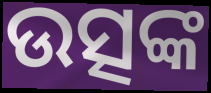
ଉତ୍ସଙ୍କ